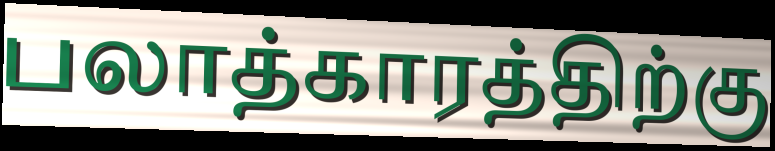
பலாத்காரத்திற்கு